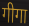
गीगा